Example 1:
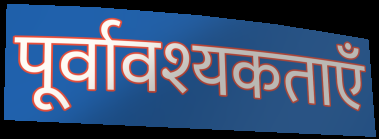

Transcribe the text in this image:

पूर्वावश्यकताएँ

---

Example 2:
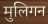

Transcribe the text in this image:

मुलिगन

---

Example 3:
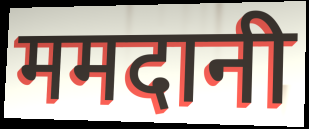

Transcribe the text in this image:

ममदानी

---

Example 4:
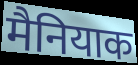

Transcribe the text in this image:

मैनियाक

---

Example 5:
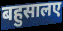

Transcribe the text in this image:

बहुसालए